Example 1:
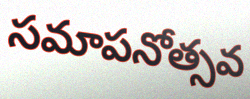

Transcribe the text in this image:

సమాపనోత్సవ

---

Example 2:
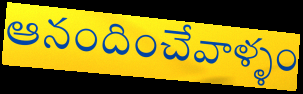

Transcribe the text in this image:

ఆనందించేవాళ్ళం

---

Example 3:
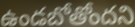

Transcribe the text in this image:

ఉండబోతోందని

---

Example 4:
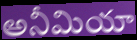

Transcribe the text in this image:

అనీమియా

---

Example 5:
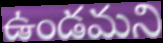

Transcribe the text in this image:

ఉండమని